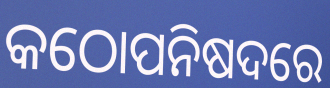
କଠୋପନିଷଦରେ